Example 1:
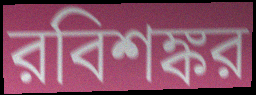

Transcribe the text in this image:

রবিশঙ্কর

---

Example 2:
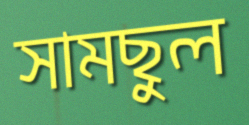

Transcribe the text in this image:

সামছুল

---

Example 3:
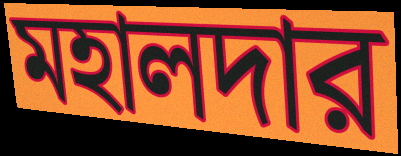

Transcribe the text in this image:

মহালদার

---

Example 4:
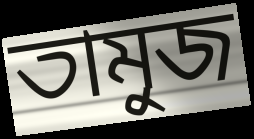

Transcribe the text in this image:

তামুজ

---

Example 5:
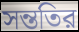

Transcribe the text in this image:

সন্ততির